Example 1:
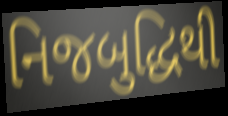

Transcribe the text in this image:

નિજબુદ્ધિથી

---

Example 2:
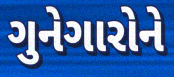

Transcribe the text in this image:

ગુનેગારોને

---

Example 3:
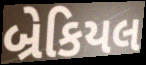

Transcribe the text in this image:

બ્રેકિયલ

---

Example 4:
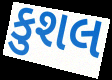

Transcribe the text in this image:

કુશલ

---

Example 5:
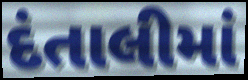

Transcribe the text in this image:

દંતાલીમાં